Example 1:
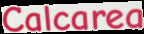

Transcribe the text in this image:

Calcarea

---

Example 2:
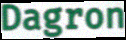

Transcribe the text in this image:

Dagron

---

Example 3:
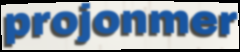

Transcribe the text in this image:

projonmer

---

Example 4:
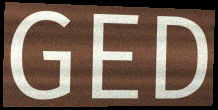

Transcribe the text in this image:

GED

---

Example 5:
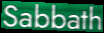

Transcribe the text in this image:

Sabbath